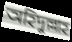
অহিদুল্লাহ